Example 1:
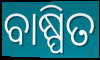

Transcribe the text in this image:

ବାଷ୍ପିତ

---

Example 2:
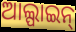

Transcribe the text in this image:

ଆଲ୍ପାଇନ୍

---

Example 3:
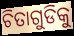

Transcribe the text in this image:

ଚିତାଗୁଡିକୁ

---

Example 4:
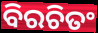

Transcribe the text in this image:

ବିରଚିତଂ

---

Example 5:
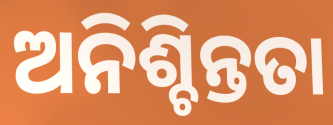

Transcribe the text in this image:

ଅନିଶ୍ଚିନ୍ତତା